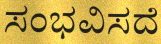
ಸಂಭವಿಸದೆ